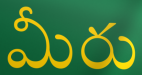
మీరు